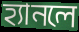
হ্যানলে